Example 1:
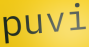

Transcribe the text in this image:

puvi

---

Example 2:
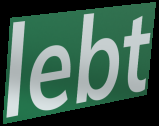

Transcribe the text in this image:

lebt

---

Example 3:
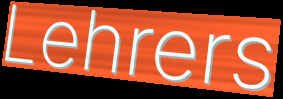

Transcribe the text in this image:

Lehrers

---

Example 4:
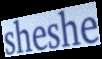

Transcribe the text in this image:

sheshe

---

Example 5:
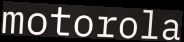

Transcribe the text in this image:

motorola